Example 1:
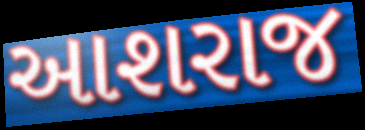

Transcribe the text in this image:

આશરાજ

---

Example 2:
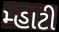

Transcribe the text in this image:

મ્હાટી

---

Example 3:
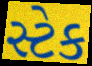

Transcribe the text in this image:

સ્ટેક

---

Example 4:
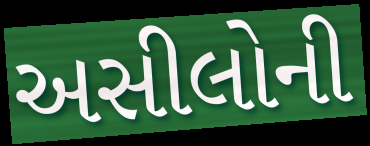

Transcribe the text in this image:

અસીલોની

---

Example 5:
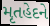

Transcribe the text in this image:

મૃતહેદને